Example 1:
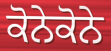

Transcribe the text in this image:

ਕੋਨੇਕੋਨੇ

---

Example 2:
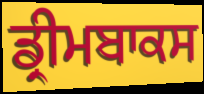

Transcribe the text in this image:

ਡ੍ਰੀਮਬਾਕਸ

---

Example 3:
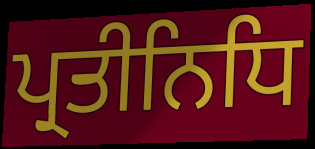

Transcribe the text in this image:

ਪ੍ਰਤੀਨਿਧਿ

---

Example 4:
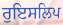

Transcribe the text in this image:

ਰੁਇਸਲਿਪ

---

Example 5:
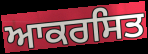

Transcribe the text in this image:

ਆਕਰਸਿਤ